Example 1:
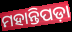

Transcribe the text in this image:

ମହାନ୍ତିପଡ଼ା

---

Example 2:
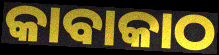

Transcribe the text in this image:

କାବାକାଠ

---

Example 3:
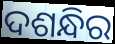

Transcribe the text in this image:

ଦଶନ୍ଧିର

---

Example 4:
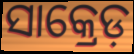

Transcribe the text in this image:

ସାକ୍ରେଡ଼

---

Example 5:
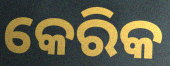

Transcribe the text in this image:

କେରିକ